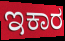
ಇಕಾರ